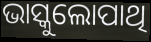
ଭାସ୍କୁଲୋପାଥି